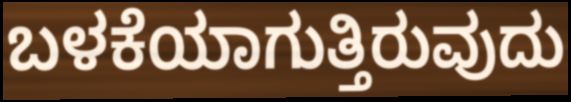
ಬಳಕೆಯಾಗುತ್ತಿರುವುದು